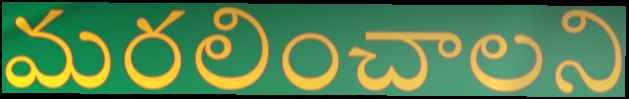
మరలించాలని